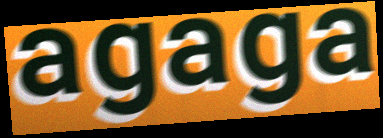
agaga